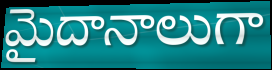
మైదానాలుగా